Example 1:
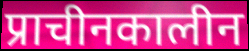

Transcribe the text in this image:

प्राचीनकालीन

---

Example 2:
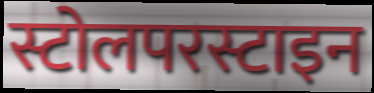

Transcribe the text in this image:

स्टोलपरस्टाइन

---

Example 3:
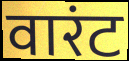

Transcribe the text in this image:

वारंट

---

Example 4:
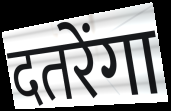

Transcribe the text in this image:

दतरेंगा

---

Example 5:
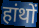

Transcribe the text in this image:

हांथों